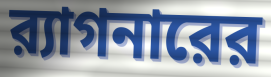
র‍্যাগনারের